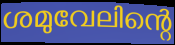
ശമുവേലിന്റെ